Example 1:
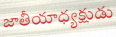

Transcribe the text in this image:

జాతీయాధ్యక్షుడు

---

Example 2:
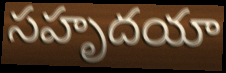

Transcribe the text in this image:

సహృదయా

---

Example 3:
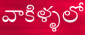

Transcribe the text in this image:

వాకిళ్ళలో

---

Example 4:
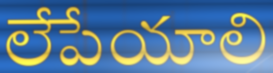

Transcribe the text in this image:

లేపేయాలి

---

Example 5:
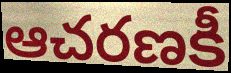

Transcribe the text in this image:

ఆచరణకీ